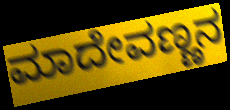
ಮಾದೇವಣ್ಣನ